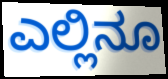
ಎಲ್ಲಿನೂ